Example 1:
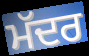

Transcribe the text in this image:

ਮੱਦਰ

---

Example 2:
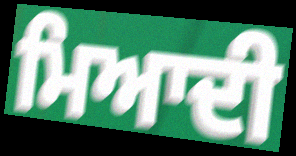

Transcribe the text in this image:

ਮਿਆਦੀ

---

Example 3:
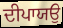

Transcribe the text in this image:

ਦੀਪਾਯਉ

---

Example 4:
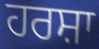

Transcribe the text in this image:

ਹਰਸ਼ਾ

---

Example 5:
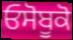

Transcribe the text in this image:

ਓਸੋਬੂਕੋ